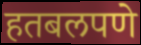
हतबलपणे